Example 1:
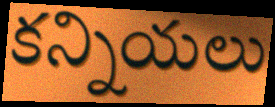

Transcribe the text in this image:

కన్నియలు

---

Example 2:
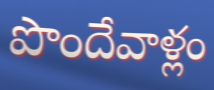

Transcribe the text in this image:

పొందేవాళ్లం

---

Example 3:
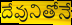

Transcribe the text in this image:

దేవునితోనే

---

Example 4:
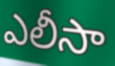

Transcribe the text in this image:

ఎలీసా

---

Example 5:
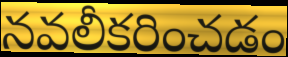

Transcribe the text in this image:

నవలీకరించడం